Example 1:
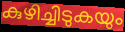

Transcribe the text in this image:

കുഴിച്ചിടുകയും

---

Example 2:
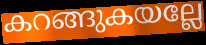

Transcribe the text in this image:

കറങ്ങുകയല്ലേ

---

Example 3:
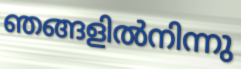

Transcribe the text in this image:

ഞങ്ങളിൽനിന്നു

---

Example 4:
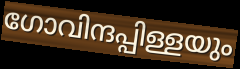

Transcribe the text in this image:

ഗോവിന്ദപ്പിള്ളയും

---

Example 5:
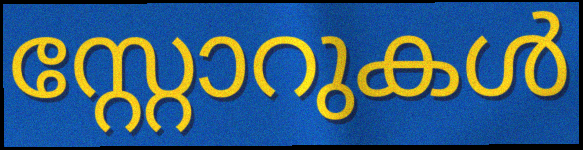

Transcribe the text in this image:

സ്റ്റോറുകൾ